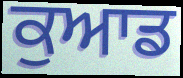
ਕੁਆਡ